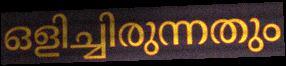
ഒളിച്ചിരുന്നതും